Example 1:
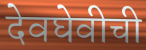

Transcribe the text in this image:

देवघेवीची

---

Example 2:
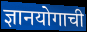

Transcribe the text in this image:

ज्ञानयोगाची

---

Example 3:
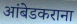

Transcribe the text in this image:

आंबेडकराना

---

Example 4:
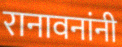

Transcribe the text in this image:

रानावनांनी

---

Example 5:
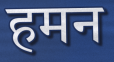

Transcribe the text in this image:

हमन